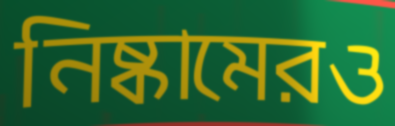
নিষ্কামেরও